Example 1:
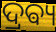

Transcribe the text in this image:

ଦ୍ରଵ୍ୟ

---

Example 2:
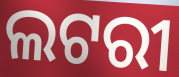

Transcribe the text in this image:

ଲଟରୀ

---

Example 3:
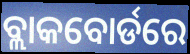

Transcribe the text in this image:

ବ୍ଲାକବୋର୍ଡରେ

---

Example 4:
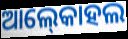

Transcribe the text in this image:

ଆଲ୍‍କୋହଲ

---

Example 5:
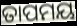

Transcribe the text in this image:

ତାପମୟ